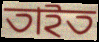
তাইত